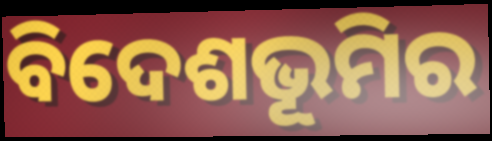
ବିଦେଶଭୂମିର